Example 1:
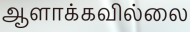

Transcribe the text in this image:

ஆளாக்கவில்லை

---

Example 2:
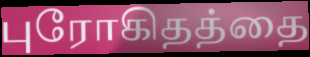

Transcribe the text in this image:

புரோகிதத்தை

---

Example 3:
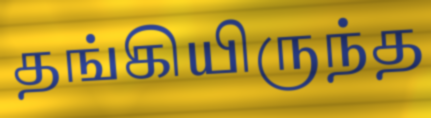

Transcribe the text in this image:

தங்கியிருந்த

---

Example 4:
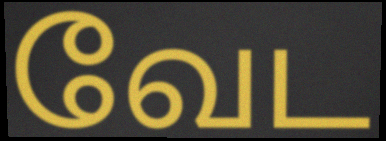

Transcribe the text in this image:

வேட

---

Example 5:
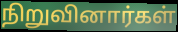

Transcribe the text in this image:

நிறுவினார்கள்